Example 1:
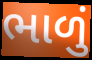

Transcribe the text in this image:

ભાળું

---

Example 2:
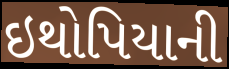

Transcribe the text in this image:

ઇથોપિયાની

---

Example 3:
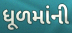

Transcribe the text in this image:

ધૂળમાંની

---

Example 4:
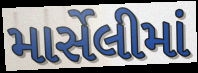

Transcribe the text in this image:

માર્સેલીમાં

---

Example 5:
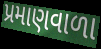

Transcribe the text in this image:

પ્રમાણવાળા